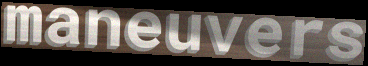
maneuvers